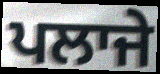
ਪਲਾਜੇ